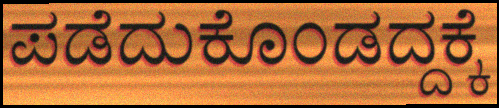
ಪಡೆದುಕೊಂಡದ್ದಕ್ಕೆ